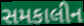
સમકાલીન